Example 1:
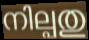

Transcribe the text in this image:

നില്പതു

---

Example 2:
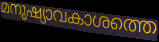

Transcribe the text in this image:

മനുഷ്യാവകാശത്തെ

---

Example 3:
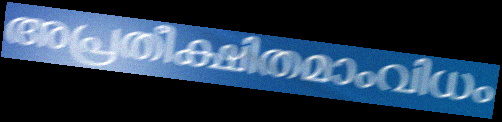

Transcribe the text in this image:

അപ്രതീക്ഷിതമാംവിധം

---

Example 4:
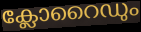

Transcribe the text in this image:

ക്ലോറൈഡും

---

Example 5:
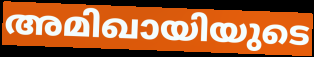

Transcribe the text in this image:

അമിഖായിയുടെ